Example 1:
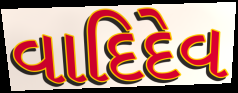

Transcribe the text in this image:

વાદિદેવ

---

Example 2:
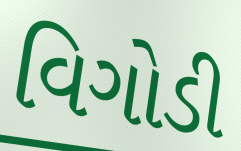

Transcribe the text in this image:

વિગોડી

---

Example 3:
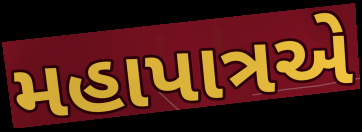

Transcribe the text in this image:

મહાપાત્રએ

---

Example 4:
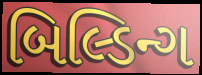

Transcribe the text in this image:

બિલ્ડિન્ગ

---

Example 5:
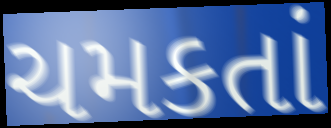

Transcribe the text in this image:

ચમકતાં